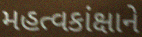
મહત્વકાંક્ષાને